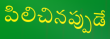
పిలిచినప్పుడే